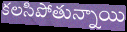
కలసిపోతున్నాయి